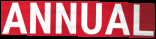
ANNUAL